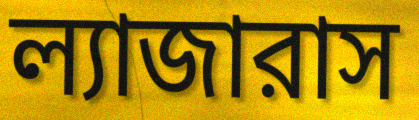
ল্যাজারাস